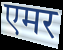
एमर